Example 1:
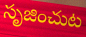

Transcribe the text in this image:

సృజించుట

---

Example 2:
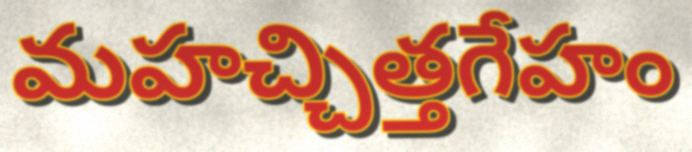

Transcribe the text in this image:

మహచ్చిత్తగేహం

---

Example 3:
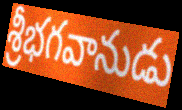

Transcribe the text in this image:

శ్రీభగవానుడు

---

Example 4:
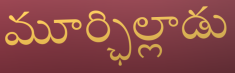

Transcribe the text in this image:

మూర్ఛిల్లాడు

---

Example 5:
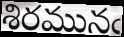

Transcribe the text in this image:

శిరమునఁ